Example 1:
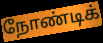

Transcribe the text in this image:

நோண்டிக்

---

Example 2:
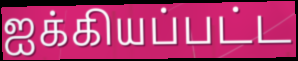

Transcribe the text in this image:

ஐக்கியப்பட்ட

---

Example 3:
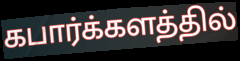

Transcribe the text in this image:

கபார்க்களத்தில்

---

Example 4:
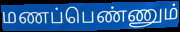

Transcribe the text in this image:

மணப்பெண்ணும்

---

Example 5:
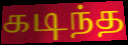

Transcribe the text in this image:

கடிந்த